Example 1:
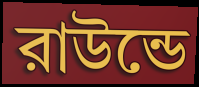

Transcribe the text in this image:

রাউন্ডে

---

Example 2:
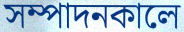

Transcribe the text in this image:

সম্পাদনকালে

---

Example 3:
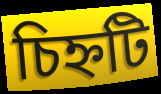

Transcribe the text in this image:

চিহ্নটি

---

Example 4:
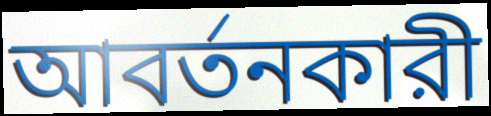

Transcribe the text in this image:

আবর্তনকারী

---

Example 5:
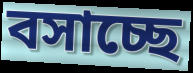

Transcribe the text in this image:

বসাচ্ছে